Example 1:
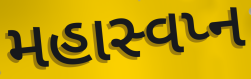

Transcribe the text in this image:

મહાસ્વપ્ન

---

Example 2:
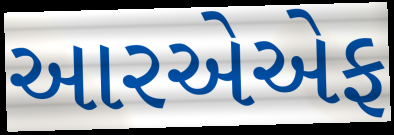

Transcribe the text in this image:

આરએએફ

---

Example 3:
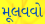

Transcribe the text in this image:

મૂલવવો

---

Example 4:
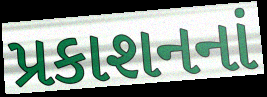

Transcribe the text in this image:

પ્રકાશનનાં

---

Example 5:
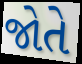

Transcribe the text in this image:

જોતે